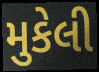
મુકેલી